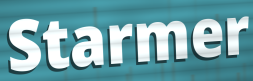
Starmer